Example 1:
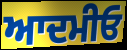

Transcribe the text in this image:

ਆਦਮੀਓ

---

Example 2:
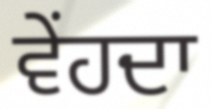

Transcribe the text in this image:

ਵੇਂਹਦਾ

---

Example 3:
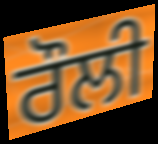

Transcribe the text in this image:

ਰੌਲੀ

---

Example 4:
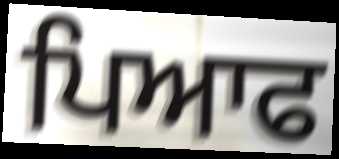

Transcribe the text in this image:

ਪਿਆਫ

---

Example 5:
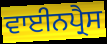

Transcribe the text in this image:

ਵਾਈਨਪ੍ਰੈਸ